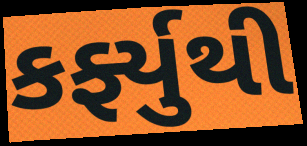
કર્ફ્યુથી